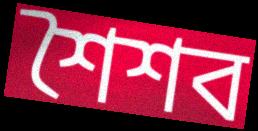
শৈশব